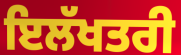
ਇਲੱਖਤਰੀ